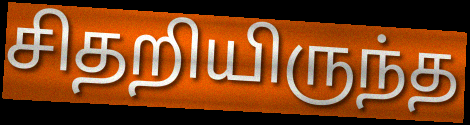
சிதறியிருந்த